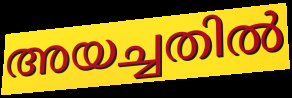
അയച്ചതിൽ